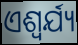
ଏଶ୍ଵର୍ଯ୍ୟ